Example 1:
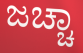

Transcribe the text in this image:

ಜಚ್ಚಾ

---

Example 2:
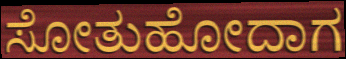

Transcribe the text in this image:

ಸೋತುಹೋದಾಗ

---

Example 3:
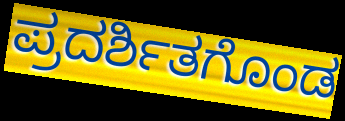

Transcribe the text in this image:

ಪ್ರದರ್ಶಿತಗೊಂಡ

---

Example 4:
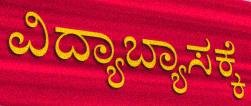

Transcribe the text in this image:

ವಿದ್ಯಾಬ್ಯಾಸಕ್ಕೆ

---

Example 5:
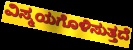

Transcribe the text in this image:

ವಿಸ್ಮಯಗೊಳಿಸುತ್ತದೆ